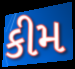
કીમ